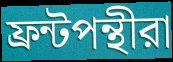
ফ্রন্টপন্থীরা